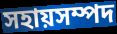
সহায়সম্পদ